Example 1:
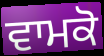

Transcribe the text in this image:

ਵਾਮਕੋ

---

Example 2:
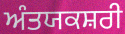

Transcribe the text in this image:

ਅੰਤਯਕਸ਼ਰੀ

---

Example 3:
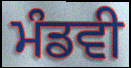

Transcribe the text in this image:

ਮੰਡਵੀ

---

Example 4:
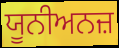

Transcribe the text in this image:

ਯੂਨੀਅਨਜ਼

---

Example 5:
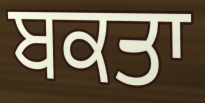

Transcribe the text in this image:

ਬਕਤਾ